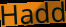
Hadd